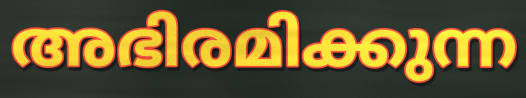
അഭിരമിക്കുന്ന